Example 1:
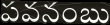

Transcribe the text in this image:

పవనంబు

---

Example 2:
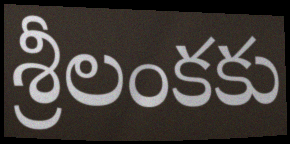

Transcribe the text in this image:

శ్రీలంకకు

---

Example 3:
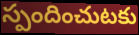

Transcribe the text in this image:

స్పందించుటకు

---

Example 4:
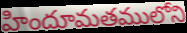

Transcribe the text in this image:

హిందూమతములోని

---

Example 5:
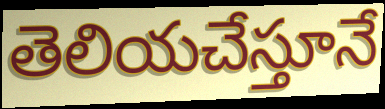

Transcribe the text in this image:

తెలియచేస్తూనే